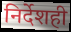
निर्देशही